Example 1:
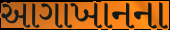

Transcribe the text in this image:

આગાખાનના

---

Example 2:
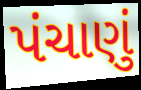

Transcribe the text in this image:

પંચાણું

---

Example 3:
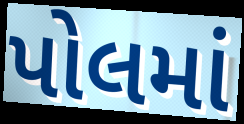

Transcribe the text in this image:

પોલમાં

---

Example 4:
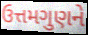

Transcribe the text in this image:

ઉત્તમગુણને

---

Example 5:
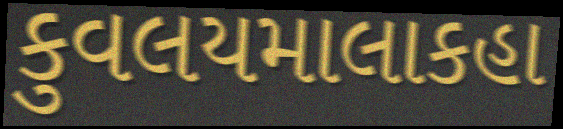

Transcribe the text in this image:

કુવલયમાલાકહા